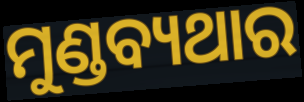
ମୁଣ୍ଡବ୍ୟଥାର